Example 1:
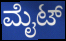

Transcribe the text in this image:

ಮೈಟ್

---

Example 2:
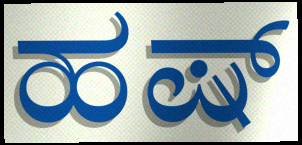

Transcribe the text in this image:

ಹಷ್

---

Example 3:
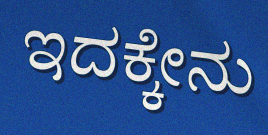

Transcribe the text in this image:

ಇದಕ್ಕೇನು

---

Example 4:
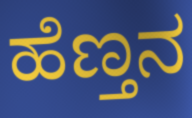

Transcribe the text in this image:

ಹೆಣ್ತನ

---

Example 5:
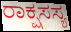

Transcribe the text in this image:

ರಾಕ್ಷಸಸ್ಯ